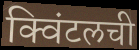
क्विंटलची